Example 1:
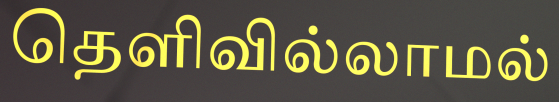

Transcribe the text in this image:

தெளிவில்லாமல்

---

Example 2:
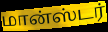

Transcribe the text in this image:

மான்ஸ்டர்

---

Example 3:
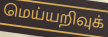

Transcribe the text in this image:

மெய்யறிவுக்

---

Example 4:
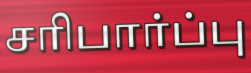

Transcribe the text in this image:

சரிபார்ப்பு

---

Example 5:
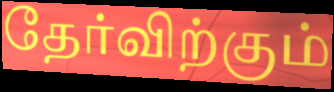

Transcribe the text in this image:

தேர்விற்கும்